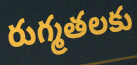
రుగ్మతలకు